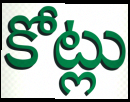
కోట్లు